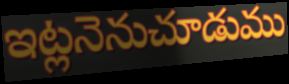
ఇట్లనెనుచూడుము